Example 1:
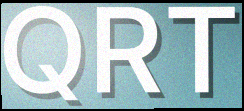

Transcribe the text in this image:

QRT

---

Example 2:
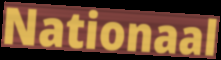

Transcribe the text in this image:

Nationaal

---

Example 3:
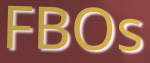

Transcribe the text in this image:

FBOs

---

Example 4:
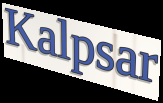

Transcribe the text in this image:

Kalpsar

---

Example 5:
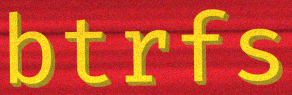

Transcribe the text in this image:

btrfs